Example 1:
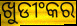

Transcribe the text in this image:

ଖୁଡୀଂକର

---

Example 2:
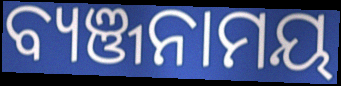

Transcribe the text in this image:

ବ୍ୟଞ୍ଜନାମୟ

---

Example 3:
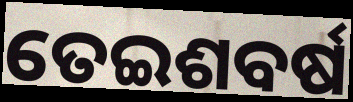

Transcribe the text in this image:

ତେଇଶବର୍ଷ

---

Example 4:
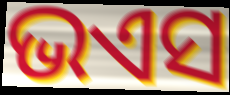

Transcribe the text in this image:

ଭଏସ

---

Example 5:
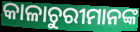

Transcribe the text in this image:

କାଳାଚୁରୀମାନଙ୍କ